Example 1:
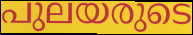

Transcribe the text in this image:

പുലയരുടെ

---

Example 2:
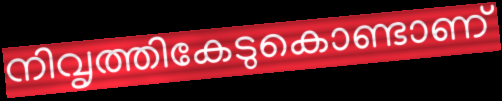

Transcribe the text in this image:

നിവൃത്തികേടുകൊണ്ടാണ്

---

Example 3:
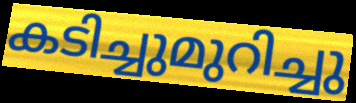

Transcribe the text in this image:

കടിച്ചുമുറിച്ചു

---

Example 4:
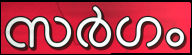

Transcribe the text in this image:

സർഗം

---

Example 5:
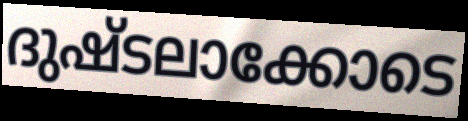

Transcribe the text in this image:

ദുഷ്ടലാക്കോടെ